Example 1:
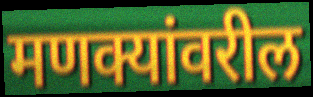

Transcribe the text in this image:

मणक्यांवरील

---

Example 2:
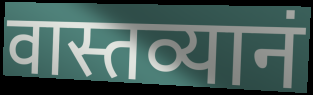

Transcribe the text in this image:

वास्तव्यानं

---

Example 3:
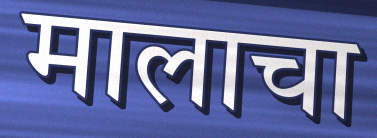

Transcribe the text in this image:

मालाचा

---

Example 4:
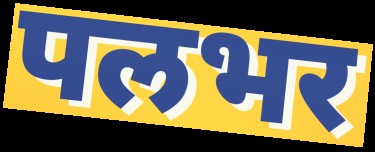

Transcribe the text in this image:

पलभर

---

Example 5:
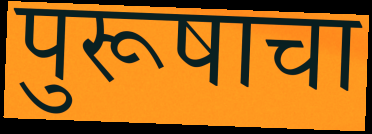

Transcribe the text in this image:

पुरूषाचा